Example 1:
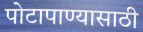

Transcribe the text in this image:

पोटापाण्यासाठी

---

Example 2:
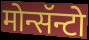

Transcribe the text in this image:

मोन्सॅन्टो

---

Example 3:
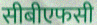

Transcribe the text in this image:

सीबीएफसी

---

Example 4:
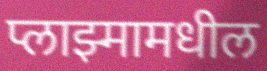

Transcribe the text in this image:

प्लाझ्मामधील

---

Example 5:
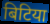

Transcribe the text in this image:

बिटिया